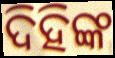
ଦିହିଙ୍କ